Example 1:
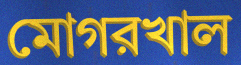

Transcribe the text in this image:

মোগরখাল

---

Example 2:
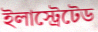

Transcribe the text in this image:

ইলাস্ট্রেটেড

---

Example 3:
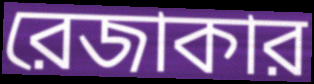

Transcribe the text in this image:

রেজাকার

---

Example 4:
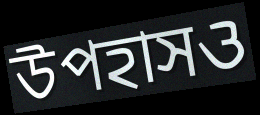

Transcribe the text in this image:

উপহাসও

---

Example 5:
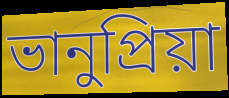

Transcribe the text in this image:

ভানুপ্রিয়া